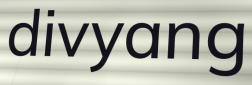
divyang